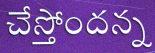
చేస్తోందన్న